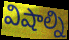
విషాల్ని